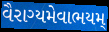
વૈરાગ્યમેવાભયમ્